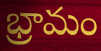
భ్రామం